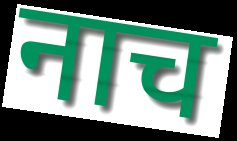
नाच